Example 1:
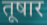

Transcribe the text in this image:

तूषार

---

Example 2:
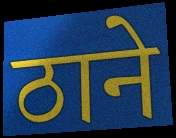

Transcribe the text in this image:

ठाने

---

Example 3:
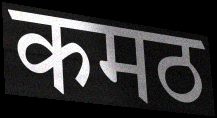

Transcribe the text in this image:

कमठ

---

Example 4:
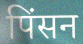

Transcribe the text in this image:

पिंसन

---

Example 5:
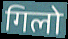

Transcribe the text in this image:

गिलो